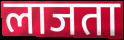
लाजता